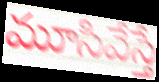
మూసివేస్తే